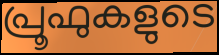
പ്രൂഫുകളുടെ